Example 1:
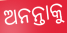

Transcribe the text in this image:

ଅନନ୍ତାକୁ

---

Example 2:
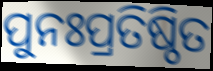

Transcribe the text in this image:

ପୁନଃପ୍ରତିଷ୍ଠିତ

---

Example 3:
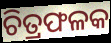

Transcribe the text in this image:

ଚିତ୍ରଫଳକ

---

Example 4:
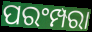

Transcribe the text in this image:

ପରଂମ୍ପରା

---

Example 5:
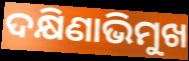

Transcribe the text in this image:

ଦକ୍ଷିଣାଭିମୁଖ